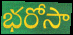
భరోసా